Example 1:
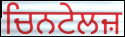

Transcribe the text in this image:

ਚਿਨਟੇਲਜ਼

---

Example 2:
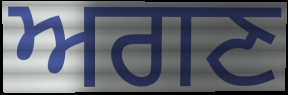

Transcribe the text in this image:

ਅਗਣ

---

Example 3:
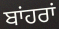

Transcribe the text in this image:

ਬਾਂਹਰਾਂ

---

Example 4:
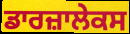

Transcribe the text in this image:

ਡਾਰਜ਼ਾਲੇਕਸ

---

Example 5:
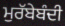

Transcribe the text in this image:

ਮੁਰੱਬੇਬੰਦੀ